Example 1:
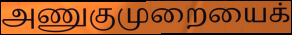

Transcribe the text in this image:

அணுகுமுறையைக்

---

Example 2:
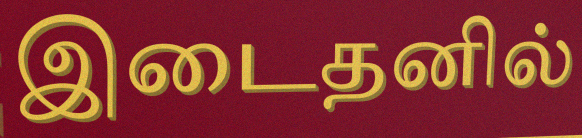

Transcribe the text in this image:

இடைதனில்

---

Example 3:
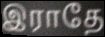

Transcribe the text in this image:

இராதே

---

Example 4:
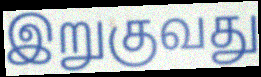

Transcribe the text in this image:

இறுகுவது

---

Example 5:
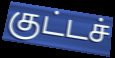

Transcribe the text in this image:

குட்டச்